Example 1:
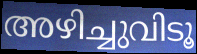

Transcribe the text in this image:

അഴിച്ചുവിടൂ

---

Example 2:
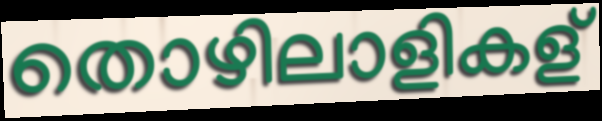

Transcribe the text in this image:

തൊഴിലാളികള്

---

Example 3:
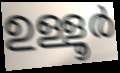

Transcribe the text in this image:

ഉള്ളൂർ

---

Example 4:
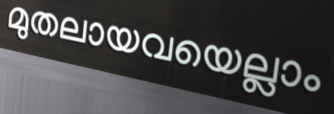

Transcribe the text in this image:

മുതലായവയെല്ലാം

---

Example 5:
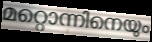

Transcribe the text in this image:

മറ്റൊന്നിനെയും